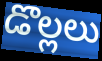
డొల్లలు